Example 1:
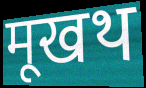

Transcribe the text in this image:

मूखथ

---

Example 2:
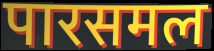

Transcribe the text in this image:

पारसमल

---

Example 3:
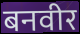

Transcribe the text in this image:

बनवीर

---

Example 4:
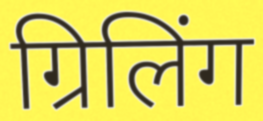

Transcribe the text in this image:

ग्रिलिंग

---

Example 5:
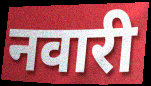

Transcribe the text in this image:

नवारी